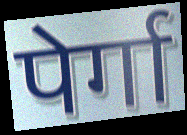
पेर्गा